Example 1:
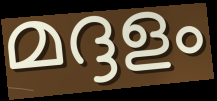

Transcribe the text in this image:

മദ്ദളം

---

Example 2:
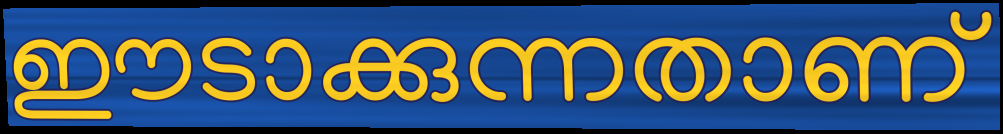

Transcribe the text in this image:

ഈടാക്കുന്നതാണ്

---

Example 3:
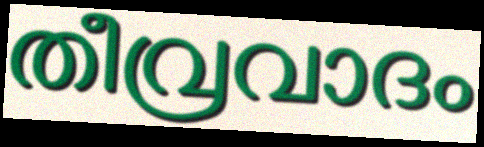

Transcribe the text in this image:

തീവ്രവാദം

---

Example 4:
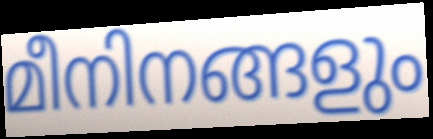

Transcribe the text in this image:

മീനിനങ്ങളും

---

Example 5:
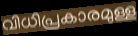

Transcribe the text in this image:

വിധിപ്രകാരമുള്ള